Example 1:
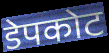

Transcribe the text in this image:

डेपकोट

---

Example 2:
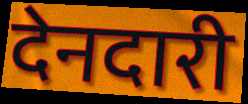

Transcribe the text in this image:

देनदारी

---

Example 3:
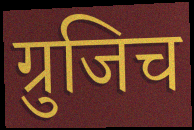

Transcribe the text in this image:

ग्रुजिच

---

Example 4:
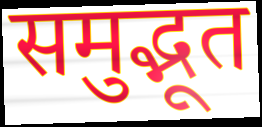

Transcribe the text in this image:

समुद्भूत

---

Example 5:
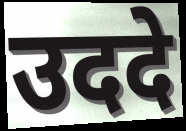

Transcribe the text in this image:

उददे